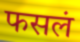
फसलं